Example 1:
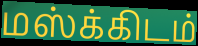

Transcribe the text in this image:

மஸ்க்கிடம்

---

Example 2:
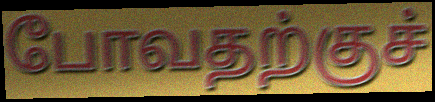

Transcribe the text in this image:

போவதற்குச்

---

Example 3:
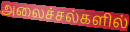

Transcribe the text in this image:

அலைச்சல்களில்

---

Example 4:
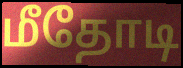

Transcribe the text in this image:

மீதோடி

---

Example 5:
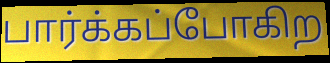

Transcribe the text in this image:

பார்க்கப்போகிற